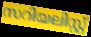
സറിയലിസ്റ്റ്